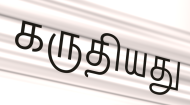
கருதியது